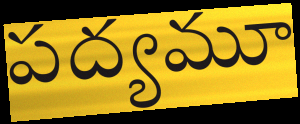
పద్యమూ